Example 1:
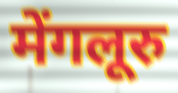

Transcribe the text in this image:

मेंगलूरु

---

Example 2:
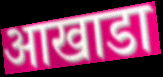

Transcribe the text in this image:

आखाडा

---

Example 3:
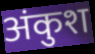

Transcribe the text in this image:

अंकुश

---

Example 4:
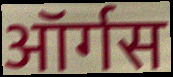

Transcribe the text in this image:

ऑर्गस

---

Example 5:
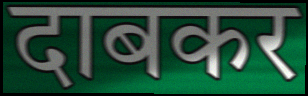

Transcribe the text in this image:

दाबकर